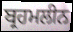
ਬ੍ਰਹਮਲੀਨ